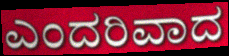
ಎಂದರಿವಾದ